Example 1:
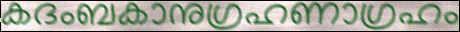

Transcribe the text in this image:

കദംബകാനുഗ്രഹണാഗ്രഹം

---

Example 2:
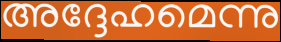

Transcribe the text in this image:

അദ്ദേഹമെന്നു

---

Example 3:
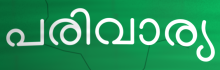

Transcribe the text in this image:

പരിവാര്യ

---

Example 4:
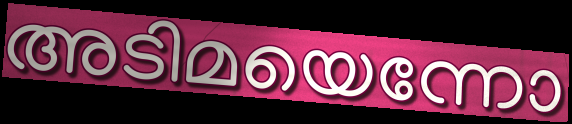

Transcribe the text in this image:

അടിമയെന്നോ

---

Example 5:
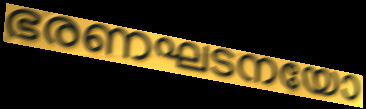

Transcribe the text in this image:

ഭരണഘടനയോ